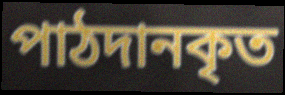
পাঠদানকৃত